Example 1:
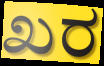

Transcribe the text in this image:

ಖರ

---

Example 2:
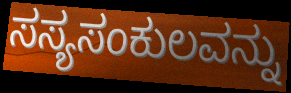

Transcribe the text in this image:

ಸಸ್ಯಸಂಕುಲವನ್ನು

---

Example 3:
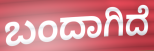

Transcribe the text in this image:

ಬಂದಾಗಿದೆ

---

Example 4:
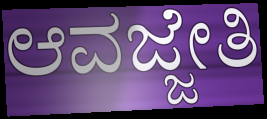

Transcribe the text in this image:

ಆವಜ್ಜೇತಿ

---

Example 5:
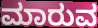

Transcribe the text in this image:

ಮಾರುವ